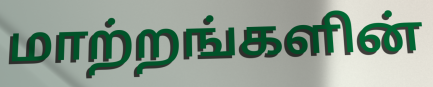
மாற்றங்களின்